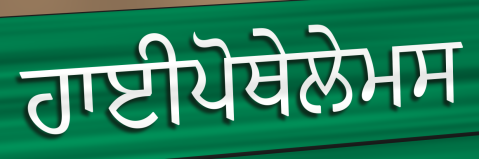
ਹਾਈਪੋਥੇਲੇਮਸ